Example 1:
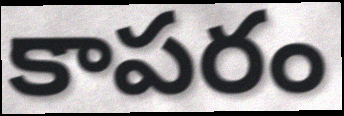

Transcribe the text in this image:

కాపరం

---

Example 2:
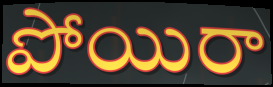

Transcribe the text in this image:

పోయిరా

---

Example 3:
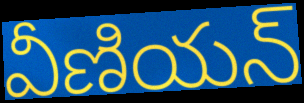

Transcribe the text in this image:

వీణియన్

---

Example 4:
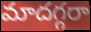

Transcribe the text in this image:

మాదగ్గరా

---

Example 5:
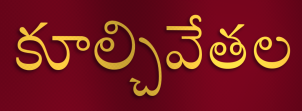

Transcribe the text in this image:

కూల్చివేతల